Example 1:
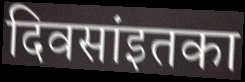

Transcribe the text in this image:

दिवसांइतका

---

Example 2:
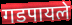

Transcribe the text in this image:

गडपायले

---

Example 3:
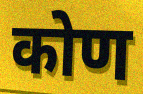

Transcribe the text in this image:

कोण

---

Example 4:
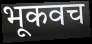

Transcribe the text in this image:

भूकवच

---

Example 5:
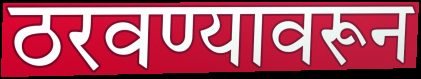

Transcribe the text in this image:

ठरवण्यावरून